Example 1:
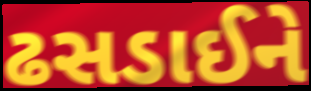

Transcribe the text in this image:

ઢસડાઈને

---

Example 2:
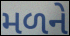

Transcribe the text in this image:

મળને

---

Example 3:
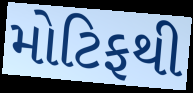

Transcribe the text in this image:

મોટિફથી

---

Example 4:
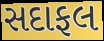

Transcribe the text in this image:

સદાફલ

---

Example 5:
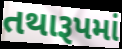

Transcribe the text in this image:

તથારૂપમાં